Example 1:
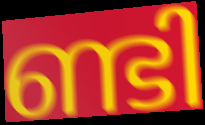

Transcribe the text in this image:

ണ്ടി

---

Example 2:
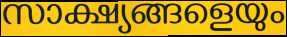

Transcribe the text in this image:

സാക്ഷ്യങ്ങളെയും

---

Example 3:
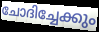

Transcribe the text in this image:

ചോദിച്ചേക്കും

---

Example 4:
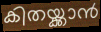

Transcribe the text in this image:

കിതയ്ക്കാൻ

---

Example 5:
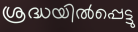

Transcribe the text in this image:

ശ്രദ്ധയിൽപ്പെട്ടു